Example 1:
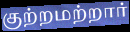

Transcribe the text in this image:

குற்றமற்றார்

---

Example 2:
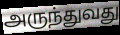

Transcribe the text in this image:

அருந்துவது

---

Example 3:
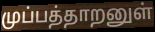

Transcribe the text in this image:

முப்பத்தாறனுள்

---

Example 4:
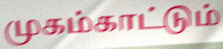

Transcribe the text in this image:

முகம்காட்டும்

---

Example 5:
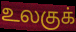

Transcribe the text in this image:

உலகுக்